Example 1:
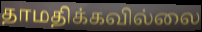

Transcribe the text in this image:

தாமதிக்கவில்லை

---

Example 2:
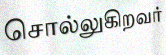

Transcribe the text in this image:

சொல்லுகிறவர்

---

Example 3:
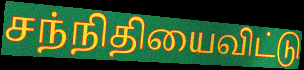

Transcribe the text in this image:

சந்நிதியைவிட்டு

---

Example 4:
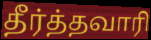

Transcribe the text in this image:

தீர்த்தவாரி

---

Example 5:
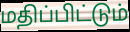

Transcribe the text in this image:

மதிப்பிட்டும்